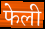
फेली